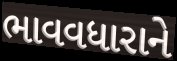
ભાવવધારાને